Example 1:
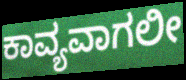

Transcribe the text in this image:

ಕಾವ್ಯವಾಗಲೀ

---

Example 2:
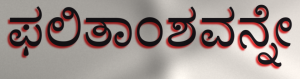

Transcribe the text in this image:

ಫಲಿತಾಂಶವನ್ನೇ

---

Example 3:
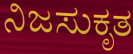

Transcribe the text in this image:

ನಿಜಸುಕೃತ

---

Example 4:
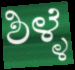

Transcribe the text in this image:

ಶಿಳ್ಳೆ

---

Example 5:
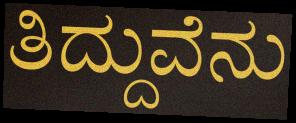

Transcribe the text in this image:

ತಿದ್ದುವೆನು